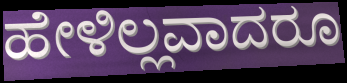
ಹೇಳಿಲ್ಲವಾದರೂ